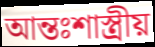
আন্তঃশাস্ত্রীয়